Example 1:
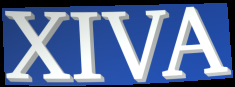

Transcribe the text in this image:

XIVA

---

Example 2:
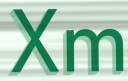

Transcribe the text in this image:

Xm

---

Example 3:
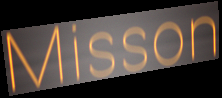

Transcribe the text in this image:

Misson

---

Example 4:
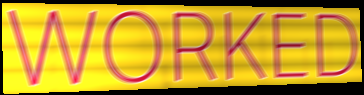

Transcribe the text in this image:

WORKED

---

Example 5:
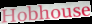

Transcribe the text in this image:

Hobhouse